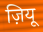
ज़ियू